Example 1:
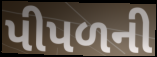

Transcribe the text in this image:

પીપળની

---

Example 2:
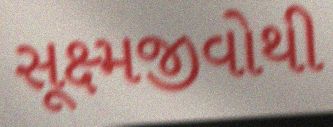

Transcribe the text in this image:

સૂક્ષ્મજીવોથી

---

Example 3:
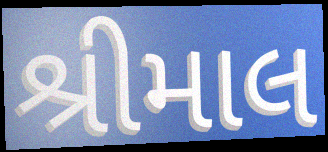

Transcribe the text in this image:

શ્રીમાલ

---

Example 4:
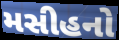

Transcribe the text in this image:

મસીહનો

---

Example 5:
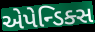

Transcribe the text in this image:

એપેન્ડિક્સ